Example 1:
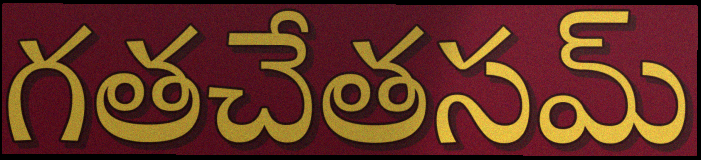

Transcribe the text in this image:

గతచేతసమ్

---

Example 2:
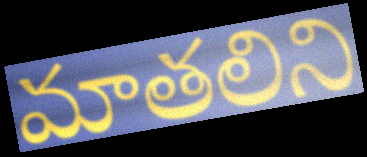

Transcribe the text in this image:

మాతలిని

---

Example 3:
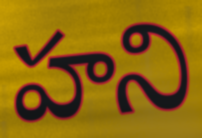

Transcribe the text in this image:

హని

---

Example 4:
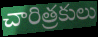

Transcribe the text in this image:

చారిత్రకులు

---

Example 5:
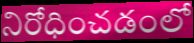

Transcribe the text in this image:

నిరోధించడంలో